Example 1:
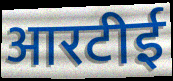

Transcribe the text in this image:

आरटीई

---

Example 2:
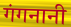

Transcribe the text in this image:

गंगनानी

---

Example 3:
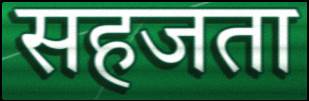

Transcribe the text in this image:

सहजता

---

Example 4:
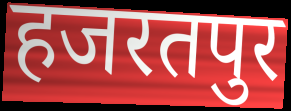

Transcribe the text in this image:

हजरतपुर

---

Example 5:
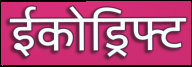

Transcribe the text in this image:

ईकोड्रिफ्ट